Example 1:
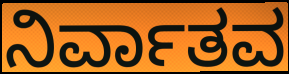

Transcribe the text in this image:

ನಿರ್ವಾತವ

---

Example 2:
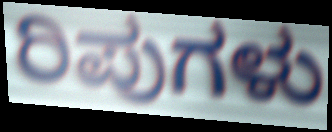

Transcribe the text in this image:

ರಿಪುಗಳು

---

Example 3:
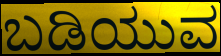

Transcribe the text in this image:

ಬಡಿಯುವ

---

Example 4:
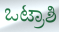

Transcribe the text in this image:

ಒಟ್ರಾಶಿ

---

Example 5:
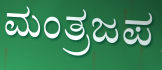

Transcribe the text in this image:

ಮಂತ್ರಜಪ